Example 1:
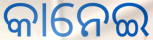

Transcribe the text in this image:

କାନେଇ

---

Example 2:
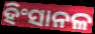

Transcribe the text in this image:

ହିଂସାନଳ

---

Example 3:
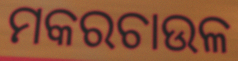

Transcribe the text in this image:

ମକରଚାଉଳ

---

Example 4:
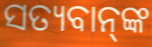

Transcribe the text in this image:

ସତ୍ୟବାନ୍‌ଙ୍କ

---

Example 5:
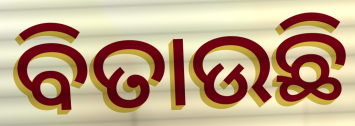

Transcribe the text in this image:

ବିତାଉଛି